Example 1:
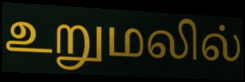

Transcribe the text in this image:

உறுமலில்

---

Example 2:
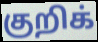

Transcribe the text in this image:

குறிக்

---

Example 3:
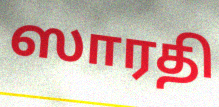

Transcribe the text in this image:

ஸாரதி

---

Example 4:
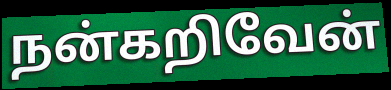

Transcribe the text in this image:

நன்கறிவேன்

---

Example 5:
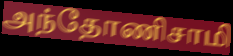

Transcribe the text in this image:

அந்தோணிசாமி